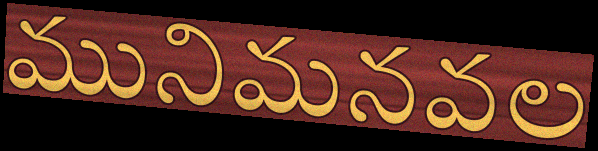
మునిమనవల